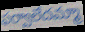
ఫర్వాలేదమ్మా